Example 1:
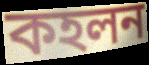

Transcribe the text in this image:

কহলন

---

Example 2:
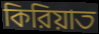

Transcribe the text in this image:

কিরিয়াত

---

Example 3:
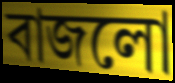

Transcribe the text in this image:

বাজলো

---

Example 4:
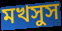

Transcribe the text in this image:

মখসুস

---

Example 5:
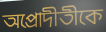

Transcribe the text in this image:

অপ্রোদীতীকে